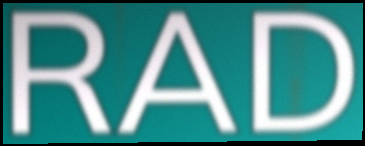
RAD